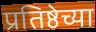
प्रतिष्ठेच्या